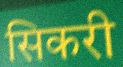
सिकरी